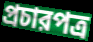
প্রচারপত্র